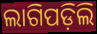
ଲାଗିପଡ଼ିଲି